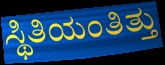
ಸ್ಥಿತಿಯಂತಿತ್ತು